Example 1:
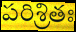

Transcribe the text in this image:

పరిశ్రితః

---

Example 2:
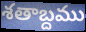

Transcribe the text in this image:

శతాబ్దము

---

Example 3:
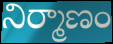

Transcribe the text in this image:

నిర్మాణం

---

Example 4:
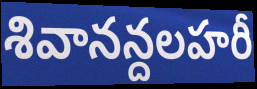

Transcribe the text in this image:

శివానన్దలహరీ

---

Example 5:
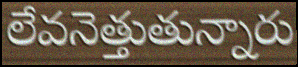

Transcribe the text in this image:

లేవనెత్తుతున్నారు